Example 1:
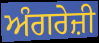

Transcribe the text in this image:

ਅੰਗਰੇਜ਼ੀ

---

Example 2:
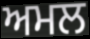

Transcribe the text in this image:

ਅਮਲ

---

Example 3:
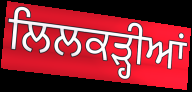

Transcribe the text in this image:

ਲਿਲਕੜ੍ਹੀਆਂ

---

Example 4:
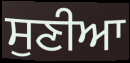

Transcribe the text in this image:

ਸੁਣੀਆ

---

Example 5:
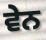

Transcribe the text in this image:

ਵੇਨ